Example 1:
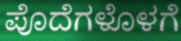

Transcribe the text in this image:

ಪೊದೆಗಳೊಳಗೆ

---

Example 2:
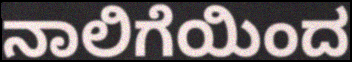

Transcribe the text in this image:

ನಾಲಿಗೆಯಿಂದ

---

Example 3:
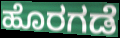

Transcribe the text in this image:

ಹೊರಗಡೆ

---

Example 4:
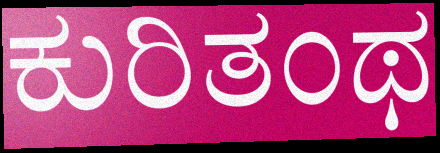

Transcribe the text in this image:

ಕುರಿತಂಥ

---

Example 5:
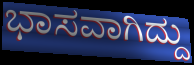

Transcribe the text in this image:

ಭಾಸವಾಗಿದ್ದು